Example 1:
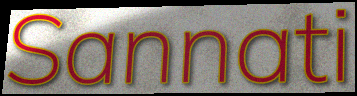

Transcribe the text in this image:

Sannati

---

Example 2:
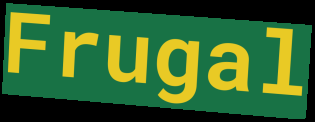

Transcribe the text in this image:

Frugal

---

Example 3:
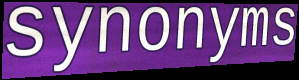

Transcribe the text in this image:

synonyms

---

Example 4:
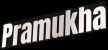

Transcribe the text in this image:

Pramukha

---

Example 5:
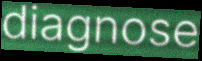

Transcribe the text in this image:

diagnose